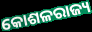
କୋଶଳରାଜ୍ୟ